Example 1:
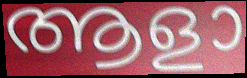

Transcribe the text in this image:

ആളാ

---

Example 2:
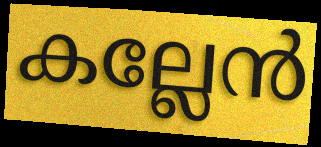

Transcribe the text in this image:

കല്ലേൻ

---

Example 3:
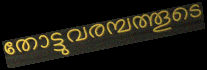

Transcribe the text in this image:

തോട്ടുവരമ്പത്തൂടെ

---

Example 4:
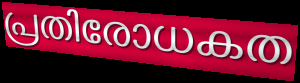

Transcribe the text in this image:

പ്രതിരോധകത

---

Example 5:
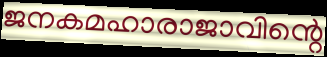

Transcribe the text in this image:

ജനകമഹാരാജാവിന്റെ